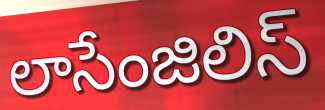
లాసేంజిలిస్